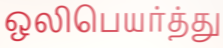
ஒலிபெயர்த்து